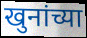
खुनांच्या